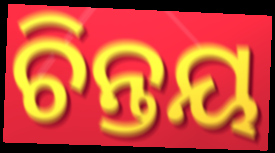
ଚିନ୍ତୟ